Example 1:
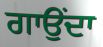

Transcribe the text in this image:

ਗਾਉਂਦਾ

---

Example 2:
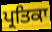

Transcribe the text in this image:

ਪ੍ਰਤਿਕਾ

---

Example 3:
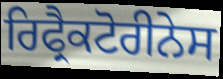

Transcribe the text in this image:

ਰਿਫ੍ਰੈਕਟੋਰੀਨੇਸ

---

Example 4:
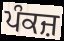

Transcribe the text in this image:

ਪੰਕਜ਼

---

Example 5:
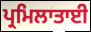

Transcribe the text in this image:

ਪ੍ਰਮਿਲਾਤਾਈ